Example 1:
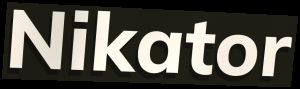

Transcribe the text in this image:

Nikator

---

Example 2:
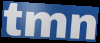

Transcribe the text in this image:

tmn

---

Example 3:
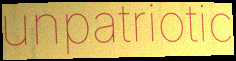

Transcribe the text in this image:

unpatriotic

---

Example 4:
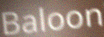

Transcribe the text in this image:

Baloon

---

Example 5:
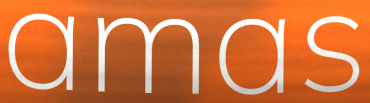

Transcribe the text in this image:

amas